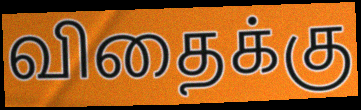
விதைக்கு